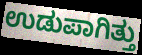
ಉಡುಪಾಗಿತ್ತು